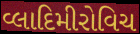
વ્લાદિમીરોવિચ